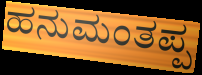
ಹನುಮಂತಪ್ಪ